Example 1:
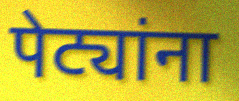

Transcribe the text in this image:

पेट्यांना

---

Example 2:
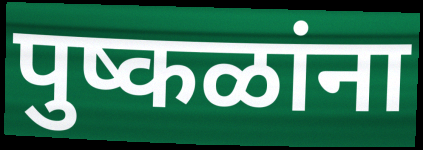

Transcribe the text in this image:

पुष्कळांना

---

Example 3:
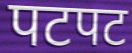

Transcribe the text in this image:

पटपट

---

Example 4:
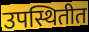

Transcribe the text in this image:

उपस्थितीत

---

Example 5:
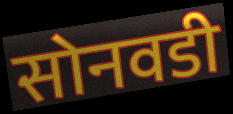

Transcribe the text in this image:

सोनवडी